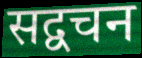
सद्वचन